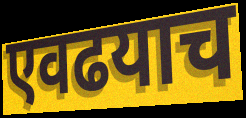
एवढयाच